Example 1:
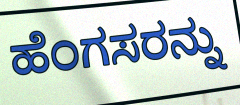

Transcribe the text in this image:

ಹೆಂಗಸರನ್ನು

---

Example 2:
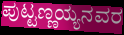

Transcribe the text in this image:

ಪುಟ್ಟಣ್ಣಯ್ಯನವರ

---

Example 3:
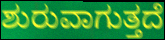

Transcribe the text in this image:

ಶುರುವಾಗುತ್ತದೆ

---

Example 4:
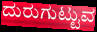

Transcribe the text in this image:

ದುರುಗುಟ್ಟುವ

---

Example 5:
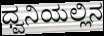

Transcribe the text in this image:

ಧ್ವನಿಯಲ್ಲಿನ